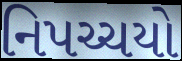
નિપચ્ચયો